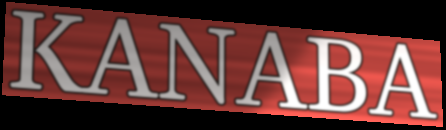
KANABA